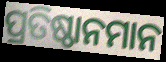
ପ୍ରତିଷ୍ଠାନମାନ